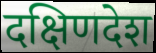
दक्षिणदेश